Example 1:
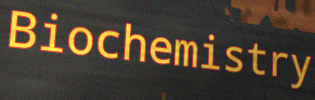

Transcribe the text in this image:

Biochemistry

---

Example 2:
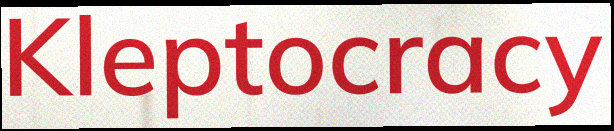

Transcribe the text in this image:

Kleptocracy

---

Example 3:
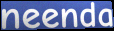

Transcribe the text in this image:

neenda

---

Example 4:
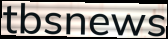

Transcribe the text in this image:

tbsnews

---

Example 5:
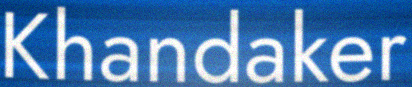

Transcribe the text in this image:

Khandaker